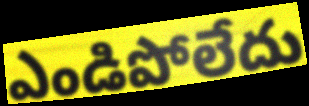
ఎండిపోలేదు